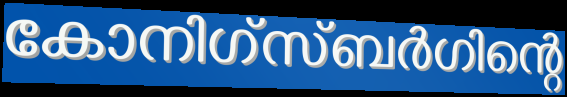
കോനിഗ്സ്ബർഗിന്റെ